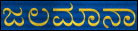
ಜಲಮಾನಾ